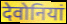
देवोनियां